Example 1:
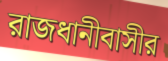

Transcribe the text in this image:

রাজধানীবাসীর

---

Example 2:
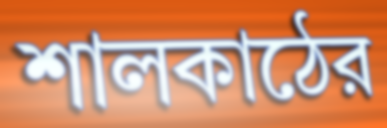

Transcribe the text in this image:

শালকাঠের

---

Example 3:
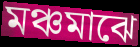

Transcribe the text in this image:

মঞ্চমাঝে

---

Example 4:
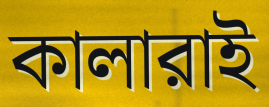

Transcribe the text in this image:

কালারাই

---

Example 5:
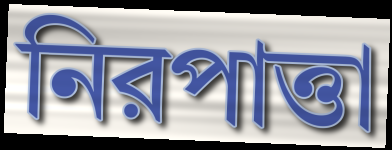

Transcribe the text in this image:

নিরপাত্তা